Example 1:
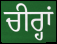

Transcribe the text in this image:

ਚੀਰ੍ਹਾਂ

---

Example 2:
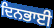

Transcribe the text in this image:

ਦਿਨਭਾਈ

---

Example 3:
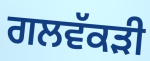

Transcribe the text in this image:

ਗਲਵੱਕੜੀ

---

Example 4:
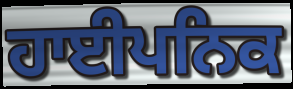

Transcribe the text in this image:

ਹਾਈਪਨਿਕ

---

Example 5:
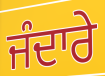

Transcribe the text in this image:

ਜੰਦਾਰੇ